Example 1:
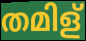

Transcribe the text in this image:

തമിള്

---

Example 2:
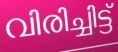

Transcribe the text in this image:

വിരിച്ചിട്ട്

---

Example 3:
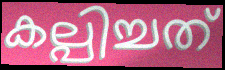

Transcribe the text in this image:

കല്പിച്ചത്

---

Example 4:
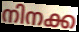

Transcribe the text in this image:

നിനക്ക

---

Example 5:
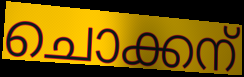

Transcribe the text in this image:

ചൊക്കന്